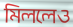
মিললেও